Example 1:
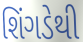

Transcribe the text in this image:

શિંગડેથી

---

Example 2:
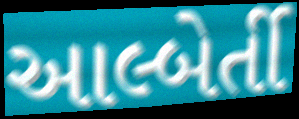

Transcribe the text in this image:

આલ્બેર્તી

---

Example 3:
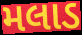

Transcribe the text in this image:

મલાડ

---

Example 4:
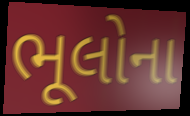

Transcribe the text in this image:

ભૂલોના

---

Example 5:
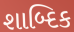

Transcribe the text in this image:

શાબ્દિક